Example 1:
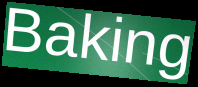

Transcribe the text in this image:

Baking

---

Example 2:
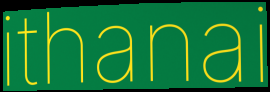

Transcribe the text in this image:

ithanai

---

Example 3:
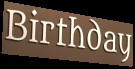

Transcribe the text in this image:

Birthday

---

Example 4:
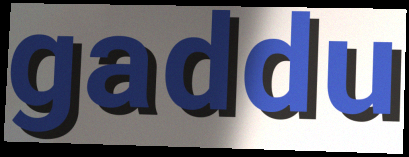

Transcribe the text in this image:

gaddu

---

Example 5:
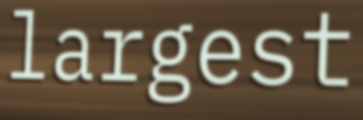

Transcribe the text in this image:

largest